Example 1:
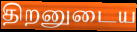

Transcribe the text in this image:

திறனுடைய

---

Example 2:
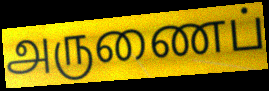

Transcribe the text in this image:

அருணைப்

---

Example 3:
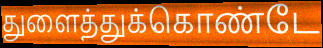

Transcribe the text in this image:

துளைத்துக்கொண்டே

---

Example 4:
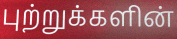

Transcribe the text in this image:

புற்றுக்களின்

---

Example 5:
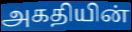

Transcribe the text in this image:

அகதியின்